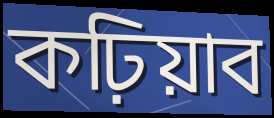
কঢ়িয়াব